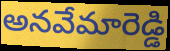
అనవేమారెడ్డి